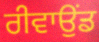
ਰੀਵਾਉਂਡ